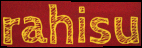
rahisu